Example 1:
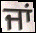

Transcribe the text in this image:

ਜਾਂ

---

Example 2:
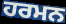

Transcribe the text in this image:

ਹਰਮਨ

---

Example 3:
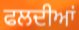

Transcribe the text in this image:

ਫਲਦੀਆਂ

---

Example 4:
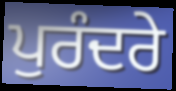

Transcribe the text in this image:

ਪੁਰੰਦਰੇ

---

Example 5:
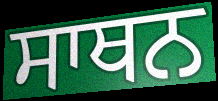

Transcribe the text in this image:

ਸਾਥਨ